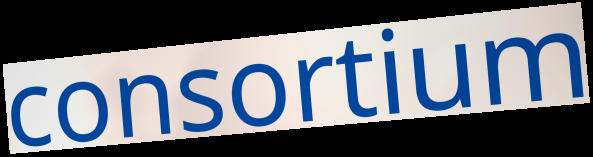
consortium